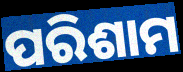
ପରିଶାମ